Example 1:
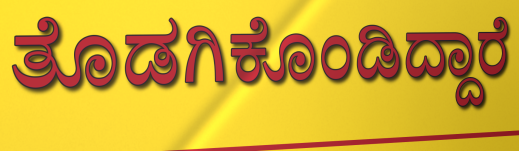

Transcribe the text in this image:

ತೊಡಗಿಕೊಂಡಿದ್ದಾರೆ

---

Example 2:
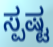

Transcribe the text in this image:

ಸ್ಪಷ್ಟ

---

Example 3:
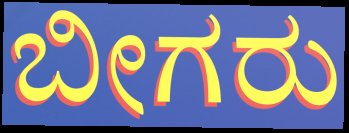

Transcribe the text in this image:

ಬೀಗರು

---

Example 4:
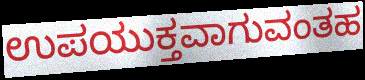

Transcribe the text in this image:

ಉಪಯುಕ್ತವಾಗುವಂತಹ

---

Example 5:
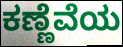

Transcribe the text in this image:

ಕಣ್ಣೆವೆಯ